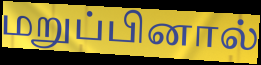
மறுப்பினால்